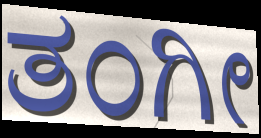
ತಂಗೀ